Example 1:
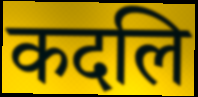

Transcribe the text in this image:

कदलि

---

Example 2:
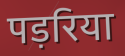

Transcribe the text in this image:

पड़रिया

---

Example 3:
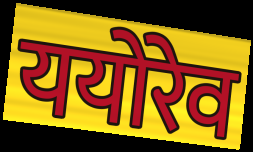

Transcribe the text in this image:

ययोरेव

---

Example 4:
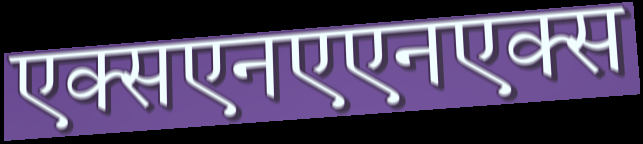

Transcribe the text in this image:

एक्सएनएएनएक्स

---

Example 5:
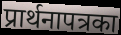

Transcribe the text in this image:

प्रार्थनापत्रका